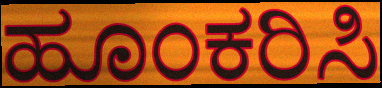
ಹೂಂಕರಿಸಿ